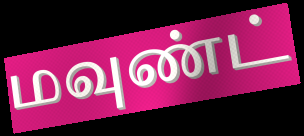
மவுண்ட்